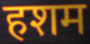
हशम